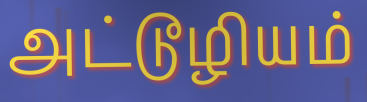
அட்டூழியம்